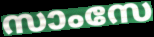
സാംസേ